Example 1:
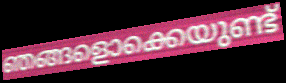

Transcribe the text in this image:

ഞങ്ങളൊക്കെയുണ്ട്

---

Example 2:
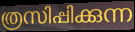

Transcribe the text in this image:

ത്രസിപ്പിക്കുന്ന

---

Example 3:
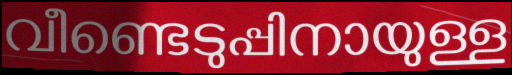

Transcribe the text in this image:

വീണ്ടെടുപ്പിനായുള്ള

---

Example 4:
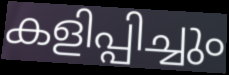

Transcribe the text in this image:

കളിപ്പിച്ചും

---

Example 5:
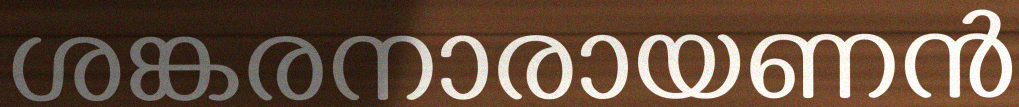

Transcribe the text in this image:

ശങ്കരനാരായണൻ